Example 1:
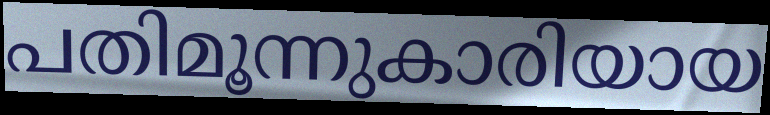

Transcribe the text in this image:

പതിമൂന്നുകാരിയായ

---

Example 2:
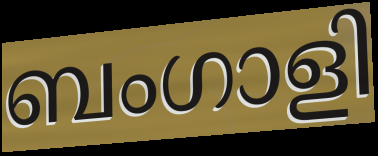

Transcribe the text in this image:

ബംഗാളി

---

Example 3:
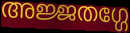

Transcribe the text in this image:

അജ്ജതഗ്ഗേ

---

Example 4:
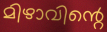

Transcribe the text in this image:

മിഴാവിന്റെ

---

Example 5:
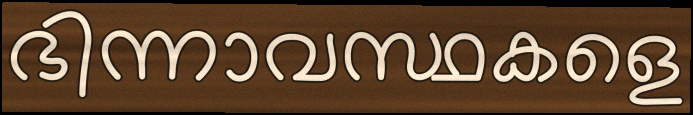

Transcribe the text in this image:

ഭിന്നാവസ്ഥകളെ